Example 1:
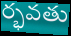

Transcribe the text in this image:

ర్భవతు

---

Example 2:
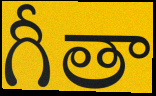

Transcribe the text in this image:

గీతా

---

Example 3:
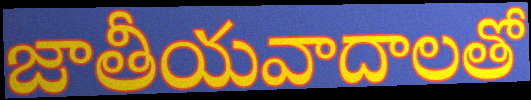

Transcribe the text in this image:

జాతీయవాదాలతో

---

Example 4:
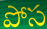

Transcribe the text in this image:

పోస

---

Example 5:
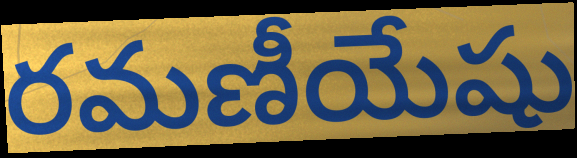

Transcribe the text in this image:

రమణీయేషు